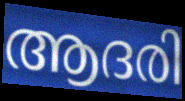
ആദരി